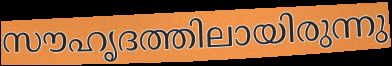
സൗഹൃദത്തിലായിരുന്നു